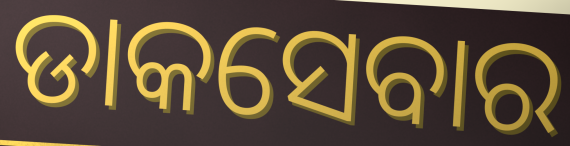
ଡାକସେବାର